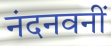
नंदनवनीं